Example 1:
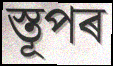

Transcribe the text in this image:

স্তূপৰ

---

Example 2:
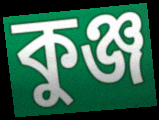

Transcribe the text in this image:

কুঞ্জ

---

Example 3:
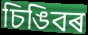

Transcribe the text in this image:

চিঙিবৰ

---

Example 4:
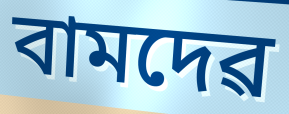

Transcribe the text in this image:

বামদেৱ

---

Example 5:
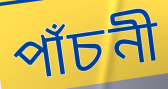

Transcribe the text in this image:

পাঁচনী